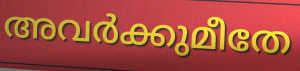
അവർക്കുമീതേ